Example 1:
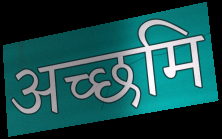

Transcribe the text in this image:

अच्छमि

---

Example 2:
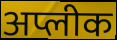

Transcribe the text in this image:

अप्लीक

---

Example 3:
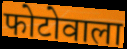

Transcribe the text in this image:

फोटोवाला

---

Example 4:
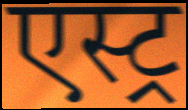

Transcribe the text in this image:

एस्ट्र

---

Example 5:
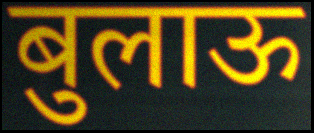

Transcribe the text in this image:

बुलाऊ